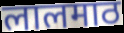
लालमाठ